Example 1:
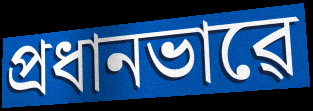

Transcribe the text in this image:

প্ৰধানভাৱে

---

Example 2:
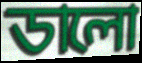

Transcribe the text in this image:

ডালো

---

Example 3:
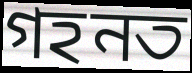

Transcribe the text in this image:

গহনত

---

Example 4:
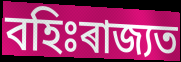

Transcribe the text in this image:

বহিঃৰাজ্যত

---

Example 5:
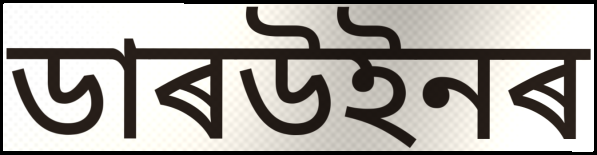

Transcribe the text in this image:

ডাৰউইনৰ